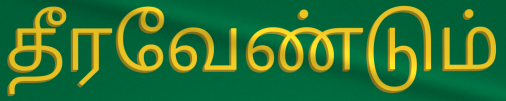
தீரவேண்டும்